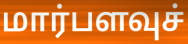
மார்பளவுச்